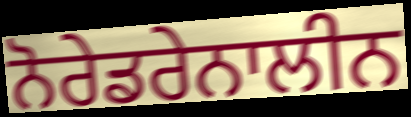
ਨੋਰੇਡਰੇਨਾਲੀਨ